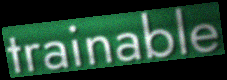
trainable